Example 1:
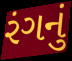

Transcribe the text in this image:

રંગનું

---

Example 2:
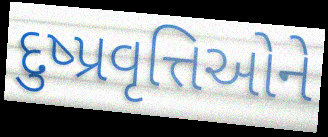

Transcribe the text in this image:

દુષ્પ્રવૃત્તિઓને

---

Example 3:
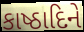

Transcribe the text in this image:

કાષ્ઠાદિને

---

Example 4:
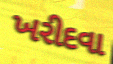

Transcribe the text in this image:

ખરીદવા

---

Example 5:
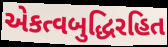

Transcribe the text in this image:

એકત્વબુદ્ધિરહિત